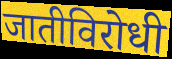
जातीविरोधी